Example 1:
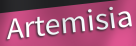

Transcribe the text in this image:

Artemisia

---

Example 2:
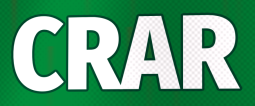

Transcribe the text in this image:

CRAR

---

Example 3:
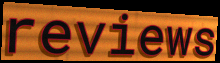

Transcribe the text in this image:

reviews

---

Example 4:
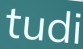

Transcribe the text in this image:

tudi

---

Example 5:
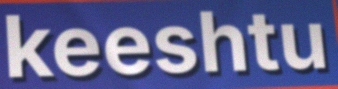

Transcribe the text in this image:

keeshtu